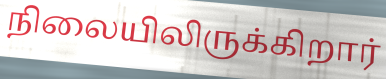
நிலையிலிருக்கிறார்